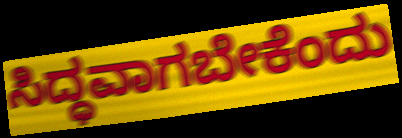
ಸಿದ್ಧವಾಗಬೇಕೆಂದು